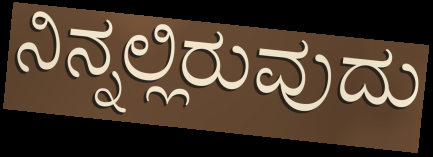
ನಿನ್ನಲ್ಲಿರುವುದು